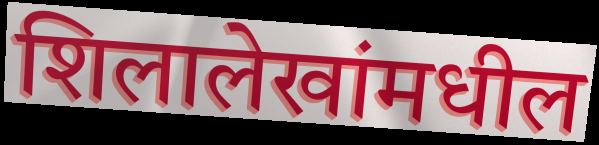
शिलालेखांमधील